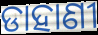
ଡାହାଣୀ